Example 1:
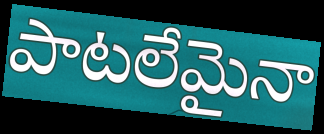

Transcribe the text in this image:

పాటలేమైనా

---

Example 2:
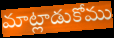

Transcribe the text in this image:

మాట్లాడుకోము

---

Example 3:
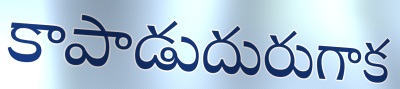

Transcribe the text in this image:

కాపాడుదురుగాక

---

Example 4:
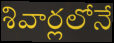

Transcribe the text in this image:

శివార్లలోనే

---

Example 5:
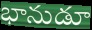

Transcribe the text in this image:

భానుడూ